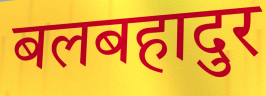
बलबहादुर